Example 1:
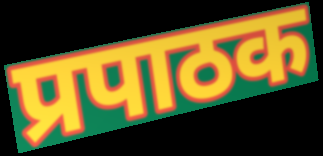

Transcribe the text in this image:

प्रपाठक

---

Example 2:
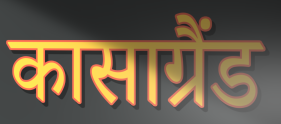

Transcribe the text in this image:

कासाग्रैंड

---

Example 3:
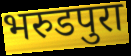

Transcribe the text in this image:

भरुडपुरा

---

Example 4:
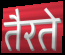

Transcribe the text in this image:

तैरते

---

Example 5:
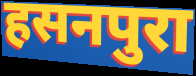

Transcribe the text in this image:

हसनपुरा